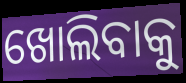
ଖୋଲିବାକୁ